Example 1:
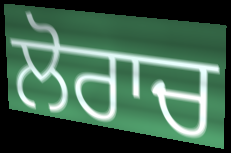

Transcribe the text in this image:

ਲੋਰਾਚ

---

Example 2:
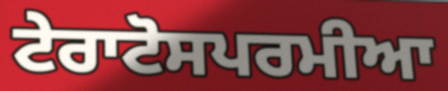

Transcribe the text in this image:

ਟੇਰਾਟੋਸਪਰਮੀਆ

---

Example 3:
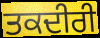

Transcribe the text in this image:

ਤਕਦੀਰੀ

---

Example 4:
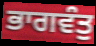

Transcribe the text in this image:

ਭਾਗਵੰਤੁ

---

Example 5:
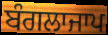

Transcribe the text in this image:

ਬੰਗਲਾਜਾਪ